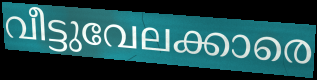
വീട്ടുവേലക്കാരെ